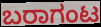
ಬರಾಗಂಟ